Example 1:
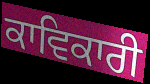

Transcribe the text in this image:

ਕਾਵਿਕਾਰੀ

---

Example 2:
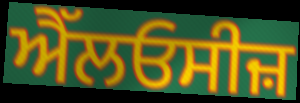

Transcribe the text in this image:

ਐੱਲਓਸੀਜ਼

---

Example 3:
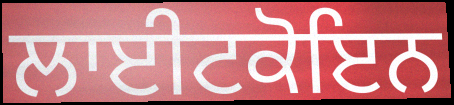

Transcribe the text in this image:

ਲਾਈਟਕੋਇਨ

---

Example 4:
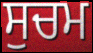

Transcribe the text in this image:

ਸੁਚਮ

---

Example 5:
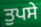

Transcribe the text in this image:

ਤੁਪਸੇ